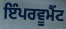
ਇੰਪਰਵੂਮੈਂਟ